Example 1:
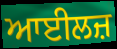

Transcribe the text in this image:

ਆਈਲਜ਼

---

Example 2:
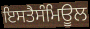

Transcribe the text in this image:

ਇਸਤੈਸੰਮਿਊਲ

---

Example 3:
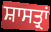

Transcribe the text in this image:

ਸ਼ਾਸਤ੍ਰਾਂ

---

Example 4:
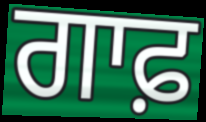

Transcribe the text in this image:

ਗਾਫ਼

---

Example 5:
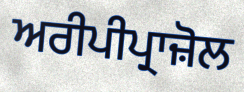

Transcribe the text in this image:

ਅਰੀਪੀਪ੍ਰਾਜ਼ੋਲ